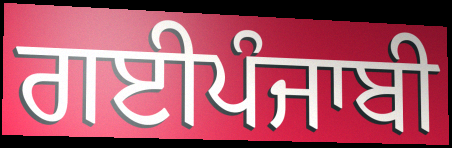
ਗਈਪੰਜਾਬੀ